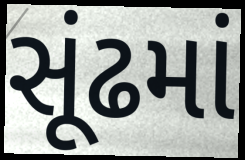
સૂંઢમાં